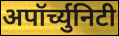
अपॉर्च्युनिटी